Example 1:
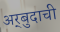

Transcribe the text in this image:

अर्बुदाची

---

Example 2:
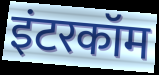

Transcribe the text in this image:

इंटरकॉम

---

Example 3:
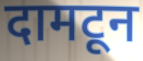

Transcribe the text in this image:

दामटून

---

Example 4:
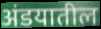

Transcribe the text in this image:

अंडयातील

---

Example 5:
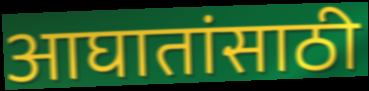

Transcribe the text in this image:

आघातांसाठी